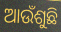
ଆଉଁଶୁଛି